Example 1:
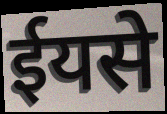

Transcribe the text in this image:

ईयसे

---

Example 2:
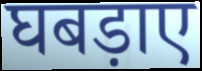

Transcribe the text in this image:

घबड़ाए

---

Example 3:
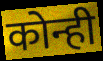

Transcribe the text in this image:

कोन्ही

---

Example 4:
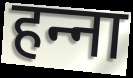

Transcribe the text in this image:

हन्ना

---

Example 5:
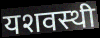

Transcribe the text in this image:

यशवस्थी